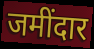
जमींदार